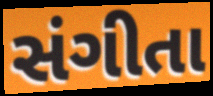
સંગીતા